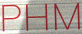
PHM